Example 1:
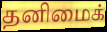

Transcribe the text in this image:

தனிமைக்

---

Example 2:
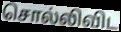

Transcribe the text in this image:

சொல்லிவிட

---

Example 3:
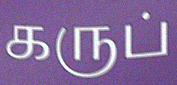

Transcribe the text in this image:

கருப்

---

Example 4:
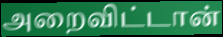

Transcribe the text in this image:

அறைவிட்டான்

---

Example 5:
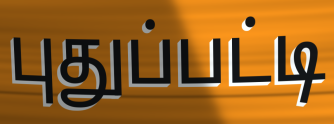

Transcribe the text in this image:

புதுப்பட்டி